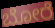
ಬೋರೆ